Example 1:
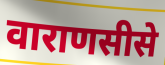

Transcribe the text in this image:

वाराणसीसे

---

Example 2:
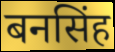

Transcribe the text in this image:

बनसिंह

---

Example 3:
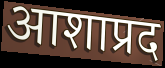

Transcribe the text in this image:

आशाप्रद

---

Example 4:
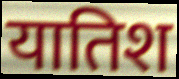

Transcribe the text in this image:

यातिश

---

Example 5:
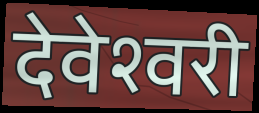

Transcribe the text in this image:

देवेश्वरी